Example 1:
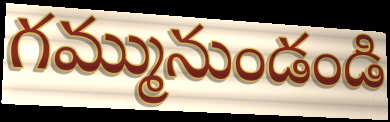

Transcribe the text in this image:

గమ్మునుండండి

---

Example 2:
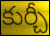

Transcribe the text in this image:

కుర్చీ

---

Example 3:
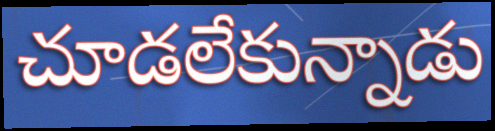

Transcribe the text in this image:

చూడలేకున్నాడు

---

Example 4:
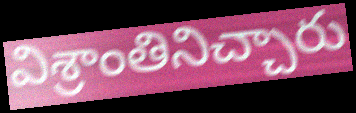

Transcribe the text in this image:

విశ్రాంతినిచ్చారు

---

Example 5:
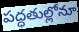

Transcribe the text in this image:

పద్ధతుల్లోనూ